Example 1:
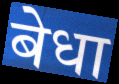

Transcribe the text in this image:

बेधा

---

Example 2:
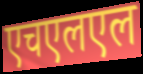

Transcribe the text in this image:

एचएलएल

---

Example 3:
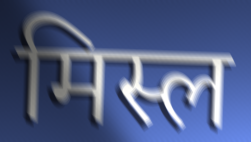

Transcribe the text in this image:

मिस्ल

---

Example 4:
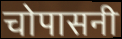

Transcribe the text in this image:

चोपासनी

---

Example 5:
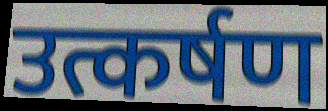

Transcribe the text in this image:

उत्कर्षण